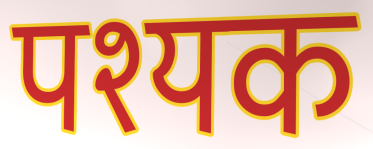
पश्यक